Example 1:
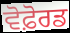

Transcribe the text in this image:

ਵੋਫ਼ੋਰਡ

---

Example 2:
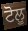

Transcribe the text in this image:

ਟੋਲੂ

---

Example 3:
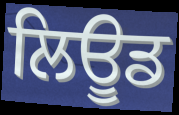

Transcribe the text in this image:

ਲਿਊਡ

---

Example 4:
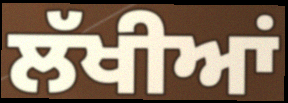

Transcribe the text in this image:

ਲੱਖੀਆਂ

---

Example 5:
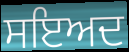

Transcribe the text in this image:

ਸਇਅਦ